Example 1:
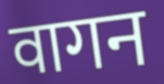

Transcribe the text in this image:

वागन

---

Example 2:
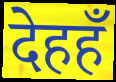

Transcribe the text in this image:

देहहँ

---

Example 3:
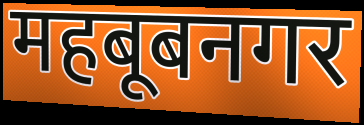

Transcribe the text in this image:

महबूबनगर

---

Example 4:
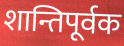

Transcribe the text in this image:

शान्तिपूर्वक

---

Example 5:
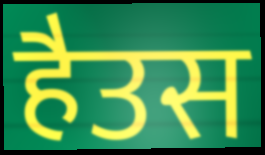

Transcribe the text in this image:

हैउस